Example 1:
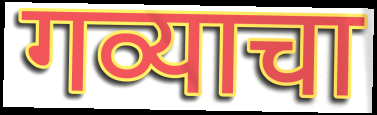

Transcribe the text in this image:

गव्याचा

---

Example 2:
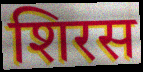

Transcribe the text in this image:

शिरस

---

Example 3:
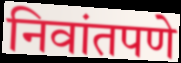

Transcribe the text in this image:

निवांतपणे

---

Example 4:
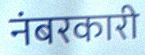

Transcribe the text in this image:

नंबरकारी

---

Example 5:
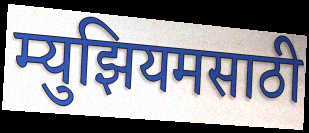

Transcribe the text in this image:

म्युझियमसाठी